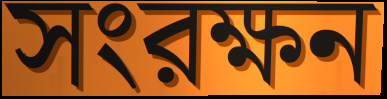
সংরক্ষন